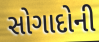
સોગાદોની